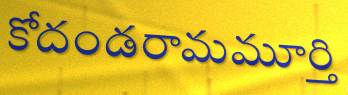
కోదండరామమూర్తి